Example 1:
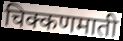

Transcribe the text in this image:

चिक्कणमाती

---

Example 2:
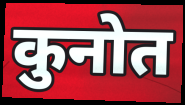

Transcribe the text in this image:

कुनोत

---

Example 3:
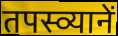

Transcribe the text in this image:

तपस्व्यानें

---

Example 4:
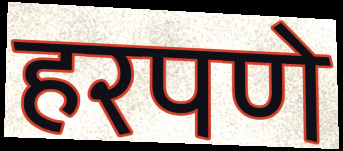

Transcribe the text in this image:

हरपणे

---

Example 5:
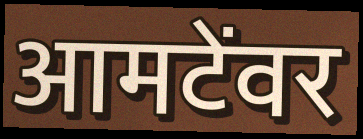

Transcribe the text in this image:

आमटेंवर